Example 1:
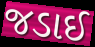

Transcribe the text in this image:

જડાઈ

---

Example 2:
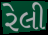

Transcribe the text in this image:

રેલી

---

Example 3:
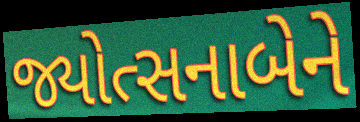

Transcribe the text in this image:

જ્યોત્સનાબેને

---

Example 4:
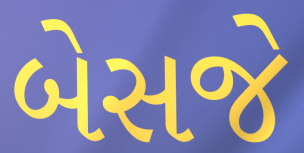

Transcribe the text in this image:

બેસજે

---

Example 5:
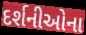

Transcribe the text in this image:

દર્શનીઓના